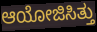
ಆಯೋಜಿಸಿತ್ತು